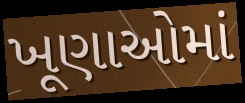
ખૂણાઓમાં